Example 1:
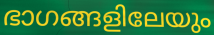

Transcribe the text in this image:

ഭാഗങ്ങളിലേയും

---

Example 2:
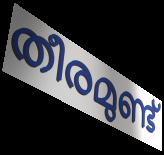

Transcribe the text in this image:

തീരമുണ്ട്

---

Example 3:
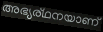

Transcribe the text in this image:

അഭ്യര്ഥനയാണ്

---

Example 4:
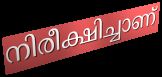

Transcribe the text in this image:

നിരീക്ഷിച്ചാണ്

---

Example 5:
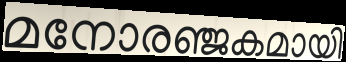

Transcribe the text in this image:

മനോരഞ്ജകമായി